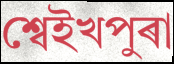
শ্বেইখপুৰা